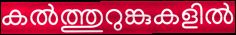
കൽത്തുറുങ്കുകളിൽ